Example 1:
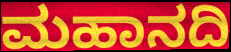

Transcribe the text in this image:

ಮಹಾನದಿ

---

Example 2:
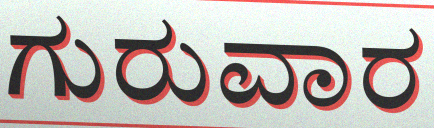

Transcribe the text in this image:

ಗುರುವಾರ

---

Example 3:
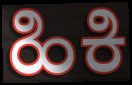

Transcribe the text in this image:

ಹಿಕಿ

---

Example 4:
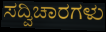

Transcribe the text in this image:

ಸದ್ವಿಚಾರಗಳು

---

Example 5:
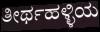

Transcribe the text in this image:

ತೀರ್ಥಹಳ್ಳಿಯ